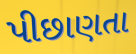
પીછાણતા